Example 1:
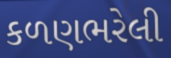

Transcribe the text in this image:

કળણભરેલી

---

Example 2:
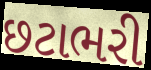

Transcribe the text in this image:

છટાભરી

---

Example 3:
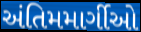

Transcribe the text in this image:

અંતિમમાર્ગીઓ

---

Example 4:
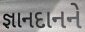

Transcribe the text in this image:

જ્ઞાનદાનને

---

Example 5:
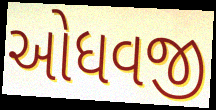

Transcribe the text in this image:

ઓધવજી